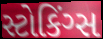
સ્ટોકિંગ્સ